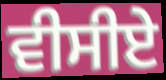
ਵੀਸੀਏ